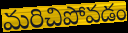
మరిచిపోవడం